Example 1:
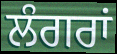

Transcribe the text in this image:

ਲੰਗਰਾਂ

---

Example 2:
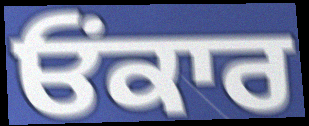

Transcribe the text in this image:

ਓਂਕਾਰ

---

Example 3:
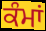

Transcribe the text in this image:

ਕੰਮਾਂ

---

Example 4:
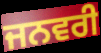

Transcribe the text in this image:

ਜਨਵਰੀ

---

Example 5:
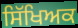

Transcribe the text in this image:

ਸਿੱਖਿਅਕ